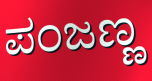
ಪಂಜಣ್ಣ